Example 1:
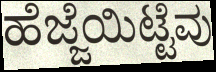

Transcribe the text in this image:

ಹೆಜ್ಜೆಯಿಟ್ಟೆವು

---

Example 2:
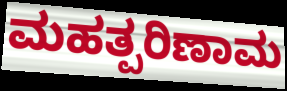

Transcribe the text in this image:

ಮಹತ್ಪರಿಣಾಮ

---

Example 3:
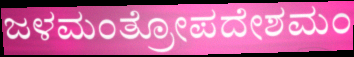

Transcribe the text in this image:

ಜಳಮಂತ್ರೋಪದೇಶಮಂ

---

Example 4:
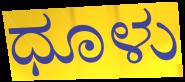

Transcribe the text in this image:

ಧೂಳು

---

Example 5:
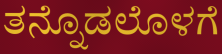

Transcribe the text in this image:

ತನ್ನೊಡಲೊಳಗೆ